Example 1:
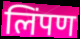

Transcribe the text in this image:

लिंपण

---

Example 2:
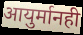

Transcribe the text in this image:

आयुर्मानही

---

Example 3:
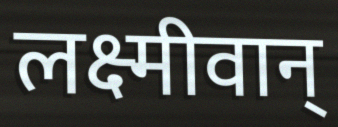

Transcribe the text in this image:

लक्ष्मीवान्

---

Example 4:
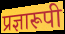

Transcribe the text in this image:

प्रज्ञारूपी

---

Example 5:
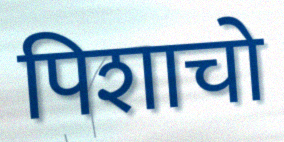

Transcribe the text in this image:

पिशाचो